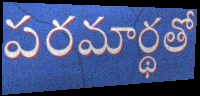
పరమార్థతో